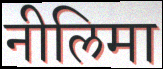
नीलिमा